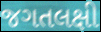
જગતલક્ષી